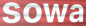
sowa